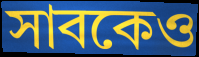
সাবকেও